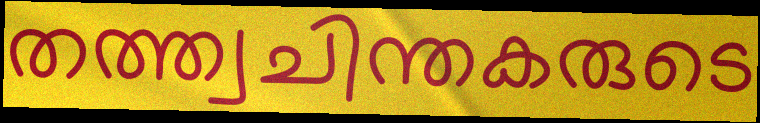
തത്ത്വചിന്തകരുടെ